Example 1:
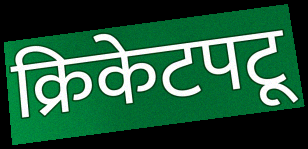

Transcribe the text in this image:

क्रिकेटपटू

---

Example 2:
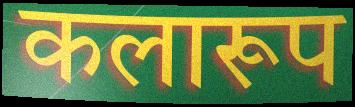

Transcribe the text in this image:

कलारूप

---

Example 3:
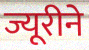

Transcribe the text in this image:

ज्यूरीने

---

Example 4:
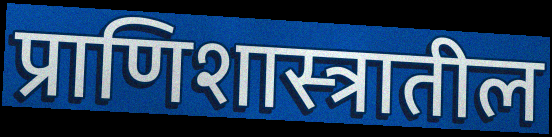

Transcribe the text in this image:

प्राणिशास्त्रातील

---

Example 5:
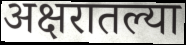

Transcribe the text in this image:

अक्षरातल्या